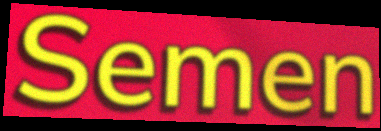
Semen